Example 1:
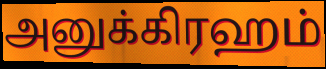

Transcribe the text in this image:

அனுக்கிரஹம்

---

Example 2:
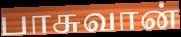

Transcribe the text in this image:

பாசுவான்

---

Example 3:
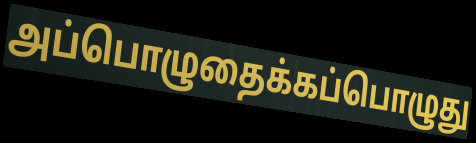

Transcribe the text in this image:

அப்பொழுதைக்கப்பொழுது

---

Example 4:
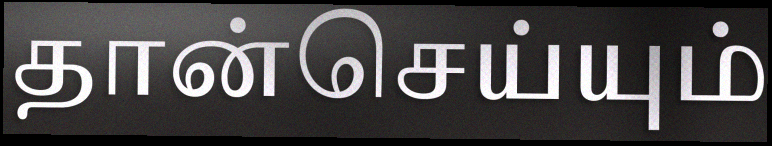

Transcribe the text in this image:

தான்செய்யும்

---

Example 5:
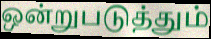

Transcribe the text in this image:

ஒன்றுபடுத்தும்